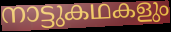
നാട്ടുകഥകളും